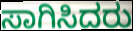
ಸಾಗಿಸಿದರು